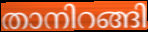
താനിറങ്ങി